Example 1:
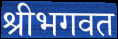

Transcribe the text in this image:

श्रीभगवत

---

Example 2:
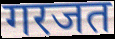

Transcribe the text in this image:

गरजत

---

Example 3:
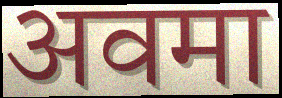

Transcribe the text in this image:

अवमा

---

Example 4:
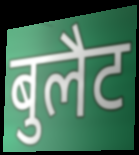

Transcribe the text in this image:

बुलैट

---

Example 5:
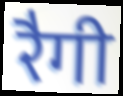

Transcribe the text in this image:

रैगी